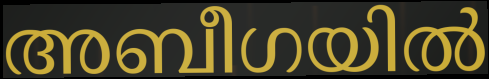
അബീഗയിൽ